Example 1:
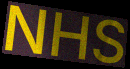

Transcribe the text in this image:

NHS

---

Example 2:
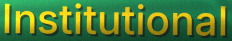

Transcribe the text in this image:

Institutional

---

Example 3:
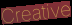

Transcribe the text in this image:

Creative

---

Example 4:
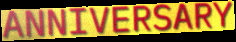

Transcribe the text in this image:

ANNIVERSARY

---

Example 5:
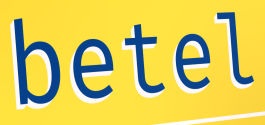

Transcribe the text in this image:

betel